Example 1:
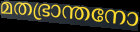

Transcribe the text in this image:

മതഭ്രാന്തനോ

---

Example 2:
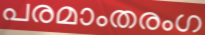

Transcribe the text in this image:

പരമാംതരംഗ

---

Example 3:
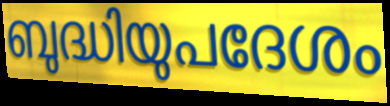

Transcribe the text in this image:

ബുദ്ധിയുപദേശം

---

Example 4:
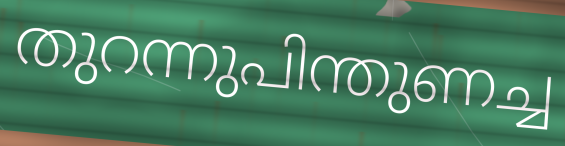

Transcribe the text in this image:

തുറന്നുപിന്തുണച്ച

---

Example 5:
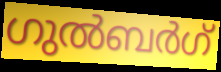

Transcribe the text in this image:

ഗുൽബർഗ്